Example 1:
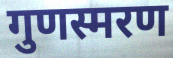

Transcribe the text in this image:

गुणस्मरण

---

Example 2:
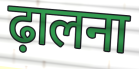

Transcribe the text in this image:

ढ़ालना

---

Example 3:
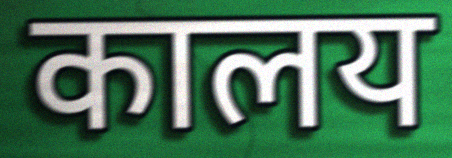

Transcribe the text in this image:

कालय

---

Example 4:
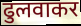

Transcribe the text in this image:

ढुलवाकर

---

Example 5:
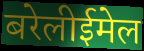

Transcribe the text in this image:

बरेलीईमेल